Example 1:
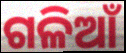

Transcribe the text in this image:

ଗଳିଆଁ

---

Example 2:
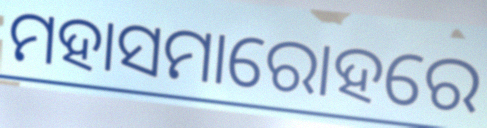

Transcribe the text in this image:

ମହାସମାରୋହରେ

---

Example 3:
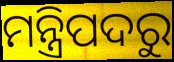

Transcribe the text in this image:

ମନ୍ତ୍ରିପଦରୁ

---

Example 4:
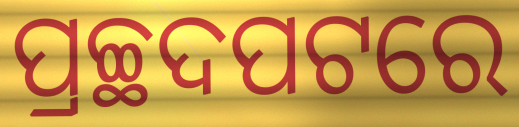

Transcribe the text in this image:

ପ୍ରଚ୍ଛଦପଟରେ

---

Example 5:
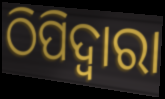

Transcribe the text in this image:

ଠିପିଦ୍ଵାରା